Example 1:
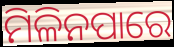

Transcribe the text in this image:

ମିଳିନପାରେ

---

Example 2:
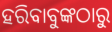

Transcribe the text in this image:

ହରିବାବୁଙ୍କଠାରୁ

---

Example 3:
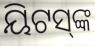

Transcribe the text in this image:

ୟିଟସ୍‌ଙ୍କ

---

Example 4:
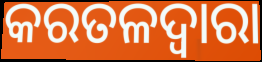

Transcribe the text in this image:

କରତଳଦ୍ଵାରା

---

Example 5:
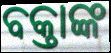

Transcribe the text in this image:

ବକ୍ତାଙ୍କ